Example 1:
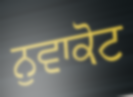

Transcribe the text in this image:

ਨੁਵਾਕੋਟ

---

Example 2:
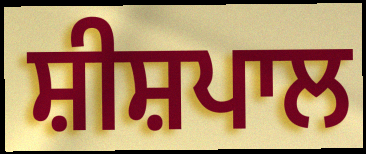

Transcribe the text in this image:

ਸ਼ੀਸ਼ਪਾਲ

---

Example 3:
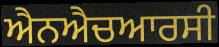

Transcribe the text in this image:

ਐਨਐਚਆਰਸੀ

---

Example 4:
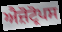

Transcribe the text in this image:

ਐਜ਼ੋਟ੍ਰੋਪਸ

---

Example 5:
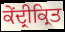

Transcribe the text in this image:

ਕੇਂਦ੍ਰੀਕ੍ਰਿਤ